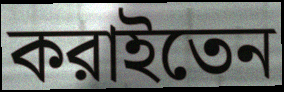
করাইতেন